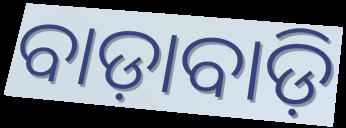
ବାଡ଼ାବାଡ଼ି